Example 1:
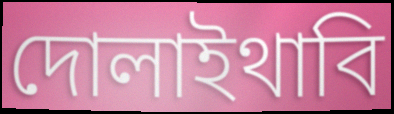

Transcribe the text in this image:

দোলাইথাবি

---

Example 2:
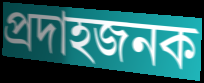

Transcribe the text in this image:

প্রদাহজনক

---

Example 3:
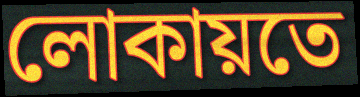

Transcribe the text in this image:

লোকায়তে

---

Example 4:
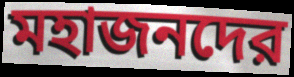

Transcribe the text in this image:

মহাজনদের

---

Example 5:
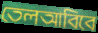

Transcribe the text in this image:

তেলআবিবে